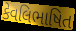
કેવલિભાષિત